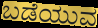
ಬಡೆಯುವ